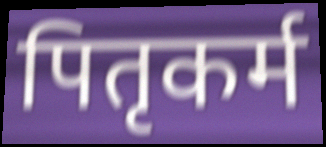
पितृकर्म